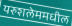
यरुशलेममधील